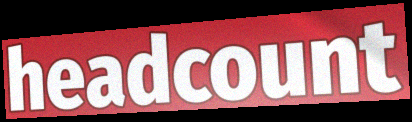
headcount